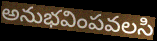
అనుభవింపవలసి